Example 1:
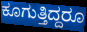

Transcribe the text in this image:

ಕೂಗುತ್ತಿದ್ದರೂ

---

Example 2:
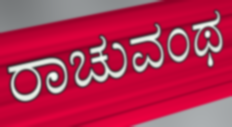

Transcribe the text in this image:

ರಾಚುವಂಥ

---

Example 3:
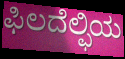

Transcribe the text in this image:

ಫಿಲದೆಲ್ಫಿಯ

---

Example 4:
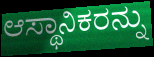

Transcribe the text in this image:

ಆಸ್ಥಾನಿಕರನ್ನು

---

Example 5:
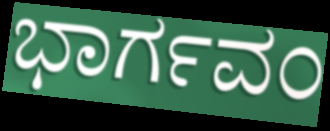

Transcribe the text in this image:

ಭಾರ್ಗವಂ